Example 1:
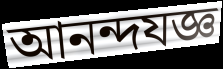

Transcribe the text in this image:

আনন্দযজ্ঞ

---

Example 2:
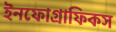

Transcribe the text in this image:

ইনফোগ্রাফিকস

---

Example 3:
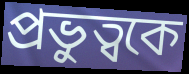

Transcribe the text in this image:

প্রভুত্বকে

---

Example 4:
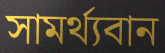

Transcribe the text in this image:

সামর্থ্যবান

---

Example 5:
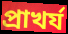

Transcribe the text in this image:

প্রাখর্য